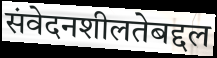
संवेदनशीलतेबद्दल